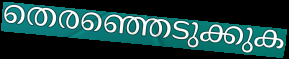
തെരഞ്ഞെടുക്കുക